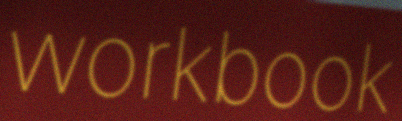
workbook